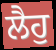
ਲੈਹੁ